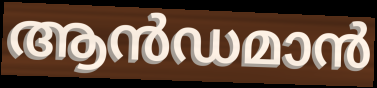
ആൻഡമാൻ